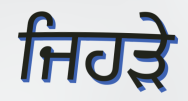
ਜਿਹਡ਼ੇ